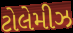
ટોલેમીઝ